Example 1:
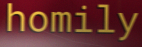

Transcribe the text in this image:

homily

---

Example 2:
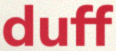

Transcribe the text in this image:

duff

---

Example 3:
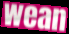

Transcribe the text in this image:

wean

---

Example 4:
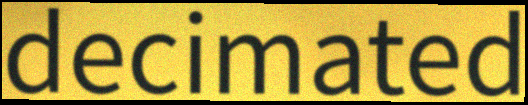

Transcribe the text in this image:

decimated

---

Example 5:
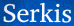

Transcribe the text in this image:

Serkis